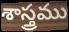
శాస్త్రము